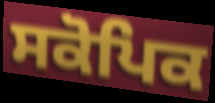
ਸਕੋਪਿਕ